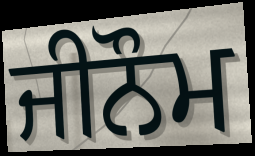
ਜੀਨੌਮ